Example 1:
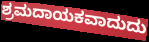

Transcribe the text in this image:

ಶ್ರಮದಾಯಕವಾದುದು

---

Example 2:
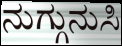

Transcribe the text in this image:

ನುಗ್ಗುನುಸಿ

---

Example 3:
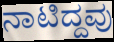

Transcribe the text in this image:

ನಾಟಿದ್ದವು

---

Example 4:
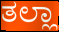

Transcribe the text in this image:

ತಲ್ಲಾ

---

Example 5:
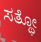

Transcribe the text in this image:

ಸತ್ಥೋ